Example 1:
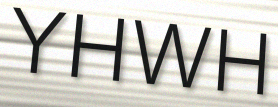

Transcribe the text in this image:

YHWH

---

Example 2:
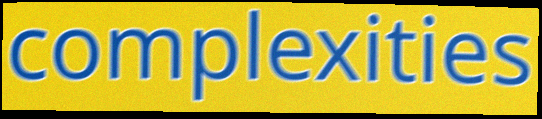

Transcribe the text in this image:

complexities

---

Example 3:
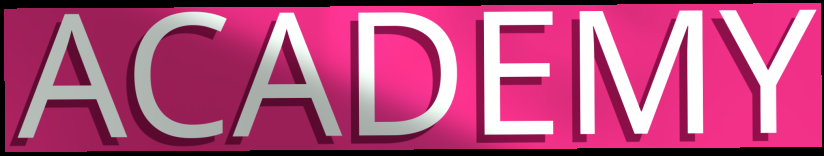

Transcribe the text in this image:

ACADEMY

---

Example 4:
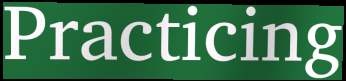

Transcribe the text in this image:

Practicing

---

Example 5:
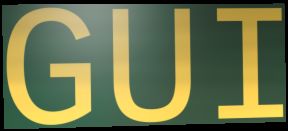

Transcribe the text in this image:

GUI